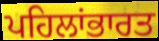
ਪਹਿਲਾਂਭਾਰਤ